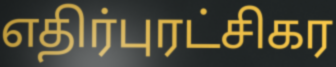
எதிர்புரட்சிகர